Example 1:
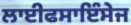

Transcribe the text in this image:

ਲਾਈਫਸਾਇੰਸੇਜ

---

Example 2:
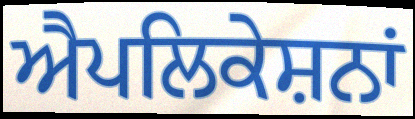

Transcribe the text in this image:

ਐਪਲਿਕੇਸ਼ਨਾਂ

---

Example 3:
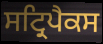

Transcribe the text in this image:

ਸਟ੍ਰਿਪੈਕਸ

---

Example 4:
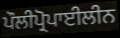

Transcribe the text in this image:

ਪੌਲੀਪ੍ਰੋਪਾਈਲੀਨ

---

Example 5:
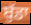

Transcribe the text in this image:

ਬੁੱਡਾ